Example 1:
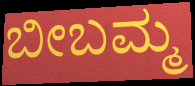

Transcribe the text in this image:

ಬೀಬಮ್ಮ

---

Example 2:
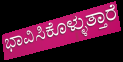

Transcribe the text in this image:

ಭಾವಿಸಿಕೊಳ್ಳುತ್ತಾರೆ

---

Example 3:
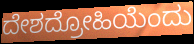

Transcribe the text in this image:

ದೇಶದ್ರೋಹಿಯೆಂದು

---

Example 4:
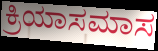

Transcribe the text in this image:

ಕ್ರಿಯಾಸಮಾಸ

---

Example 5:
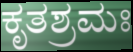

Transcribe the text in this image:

ಕೃತಶ್ರಮಃ